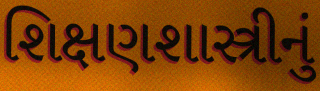
શિક્ષણશાસ્ત્રીનું